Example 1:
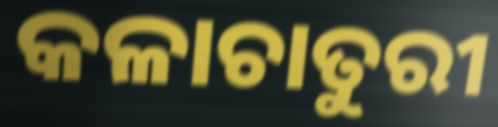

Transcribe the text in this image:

କଳାଚାତୁରୀ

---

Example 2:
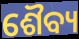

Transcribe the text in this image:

ଶୈବ୍ୟ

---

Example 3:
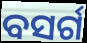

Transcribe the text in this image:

ବସର୍ଗ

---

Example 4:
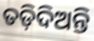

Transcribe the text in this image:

ତଡ଼ିଦିଅନ୍ତି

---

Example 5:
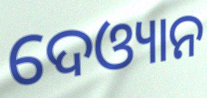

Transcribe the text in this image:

ଦେଓ୍ୟାନ